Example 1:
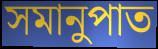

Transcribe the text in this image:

সমানুপাত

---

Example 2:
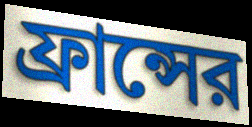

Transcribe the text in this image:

ফ্রান্সের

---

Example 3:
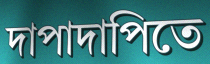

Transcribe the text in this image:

দাপাদাপিতে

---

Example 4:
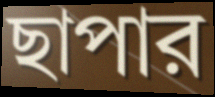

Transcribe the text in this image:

ছাপার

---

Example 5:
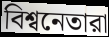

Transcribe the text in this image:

বিশ্বনেতারা